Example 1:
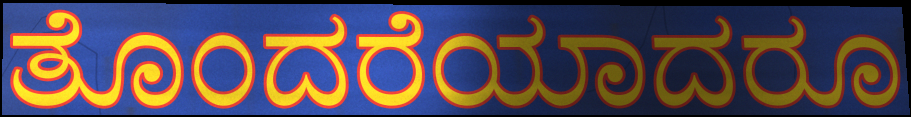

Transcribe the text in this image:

ತೊಂದರೆಯಾದರೂ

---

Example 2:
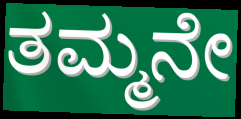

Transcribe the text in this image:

ತಮ್ಮನೇ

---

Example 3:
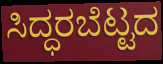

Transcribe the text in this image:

ಸಿದ್ಧರಬೆಟ್ಟದ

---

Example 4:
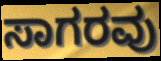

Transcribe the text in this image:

ಸಾಗರವು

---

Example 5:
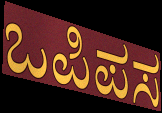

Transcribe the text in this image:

ಒಪಿಪಸ